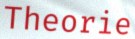
Theorie